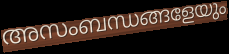
അസംബന്ധങ്ങളേയും